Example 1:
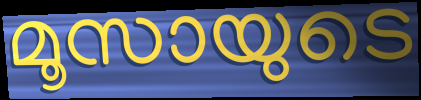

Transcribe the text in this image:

മൂസായുടെ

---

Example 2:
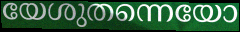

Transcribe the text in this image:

യേശുതന്നെയോ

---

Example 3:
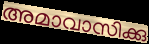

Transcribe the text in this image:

അമാവാസിക്കു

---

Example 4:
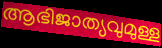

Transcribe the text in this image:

ആഭിജാത്യവുമുള്ള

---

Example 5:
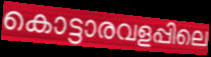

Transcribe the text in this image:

കൊട്ടാരവളപ്പിലെ